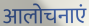
आलोचनाएं